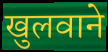
खुलवाने